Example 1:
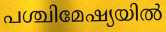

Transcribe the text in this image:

പശ്ചിമേഷ്യയിൽ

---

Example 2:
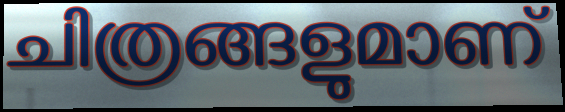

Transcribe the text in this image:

ചിത്രങ്ങളുമാണ്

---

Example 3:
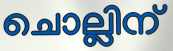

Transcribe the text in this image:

ചൊല്ലിന്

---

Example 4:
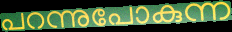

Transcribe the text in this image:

പറന്നുപോകുന്ന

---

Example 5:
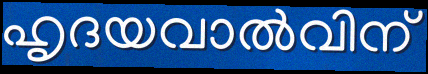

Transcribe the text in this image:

ഹൃദയവാൽവിന്